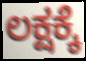
ಲಕ್ಷಕ್ಕೆ